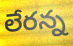
లేరన్న